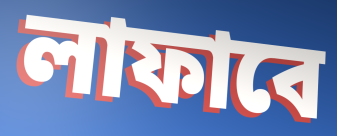
লাফাবে